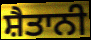
ਸ਼ੈਤਾਨੀ